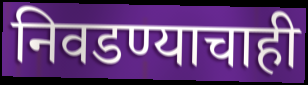
निवडण्याचाही